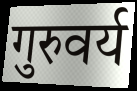
गुरुवर्य